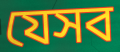
যেসব